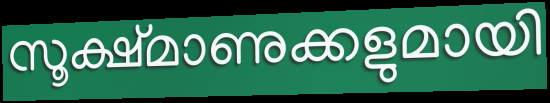
സൂക്ഷ്മാണുക്കളുമായി